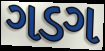
ગડગ